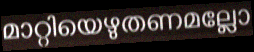
മാറ്റിയെഴുതണമല്ലോ